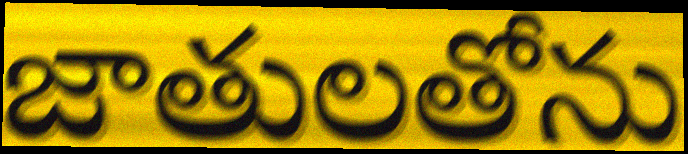
జాతులతోను